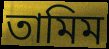
তামিম